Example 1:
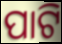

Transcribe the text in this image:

ପାଟି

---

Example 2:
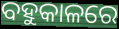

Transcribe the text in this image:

ବହୁକାଳରେ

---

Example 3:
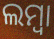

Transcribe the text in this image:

ଲମ୍ୱା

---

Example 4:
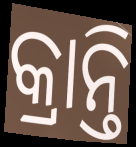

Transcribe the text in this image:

କ୍ରାନ୍ତି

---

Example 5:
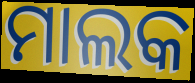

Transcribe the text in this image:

ମାଲକ